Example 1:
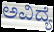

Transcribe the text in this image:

ಅವಿದ್ಯೆ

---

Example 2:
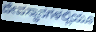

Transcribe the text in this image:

ದೇವಸ್ಥಾನಗಳಲ್ಲಿಯೂ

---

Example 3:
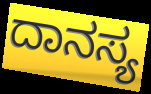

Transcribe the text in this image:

ದಾನಸ್ಯ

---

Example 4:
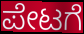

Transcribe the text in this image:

ಪೇಟಗೆ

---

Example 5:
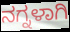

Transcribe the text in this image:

ನಗ್ನಳಾಗಿ